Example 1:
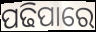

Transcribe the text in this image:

ପଢିପାରେ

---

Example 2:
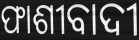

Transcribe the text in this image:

ଫାଶୀବାଦୀ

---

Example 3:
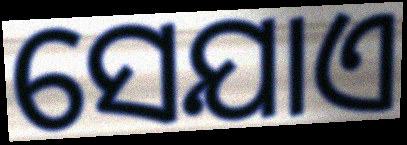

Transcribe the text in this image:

ସେଯାଏ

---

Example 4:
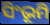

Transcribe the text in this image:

ସିଂଭୂମି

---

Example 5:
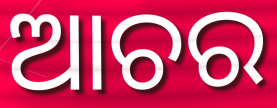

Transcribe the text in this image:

ଆଚର